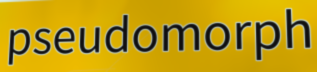
pseudomorph